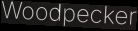
Woodpecker